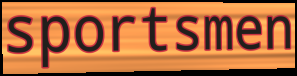
sportsmen